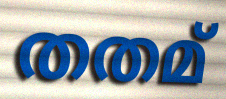
തതമ്